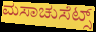
ಮಸಾಚುಸೆಟ್ಸ್